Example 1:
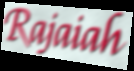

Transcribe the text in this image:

Rajaiah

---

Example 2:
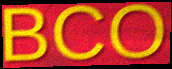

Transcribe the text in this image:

BCO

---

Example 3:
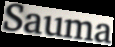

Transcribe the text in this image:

Sauma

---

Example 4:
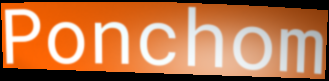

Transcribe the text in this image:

Ponchom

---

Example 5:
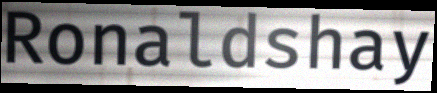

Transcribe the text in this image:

Ronaldshay